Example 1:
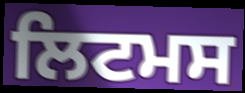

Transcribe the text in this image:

ਲਿਟਮਸ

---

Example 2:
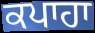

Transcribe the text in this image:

ਕਪਾਹਾ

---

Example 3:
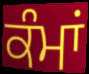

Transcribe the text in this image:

ਕੰਮਾਂ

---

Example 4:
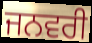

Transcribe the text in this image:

ਜਨਵਰੀ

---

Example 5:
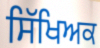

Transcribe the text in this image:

ਸਿੱਖਿਅਕ